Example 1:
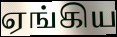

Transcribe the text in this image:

ஏங்கிய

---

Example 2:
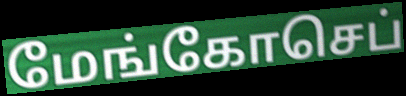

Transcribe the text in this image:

மேங்கோசெப்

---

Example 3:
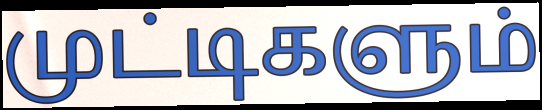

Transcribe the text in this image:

முட்டிகளும்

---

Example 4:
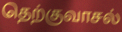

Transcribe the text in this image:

தெற்குவாசல்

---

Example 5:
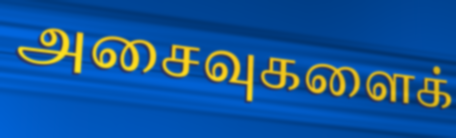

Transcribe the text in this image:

அசைவுகளைக்